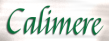
Calimere